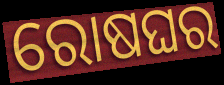
ରୋଷଘର